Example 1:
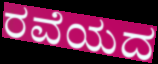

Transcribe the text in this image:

ರವೆಯದ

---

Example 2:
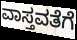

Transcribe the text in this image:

ವಾಸ್ತವತೆಗೆ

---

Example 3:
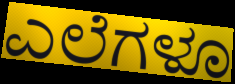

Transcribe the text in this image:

ಎಲೆಗಳೂ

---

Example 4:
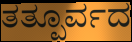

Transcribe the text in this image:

ತತ್ಪೂರ್ವದ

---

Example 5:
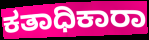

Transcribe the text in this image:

ಕತಾಧಿಕಾರಾ